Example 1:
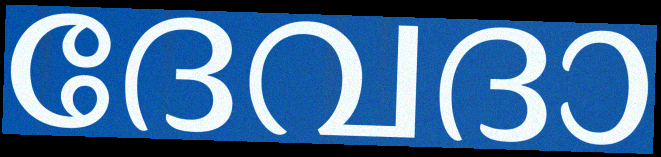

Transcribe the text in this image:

ദേവദാ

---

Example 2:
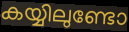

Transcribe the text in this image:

കയ്യിലുണ്ടോ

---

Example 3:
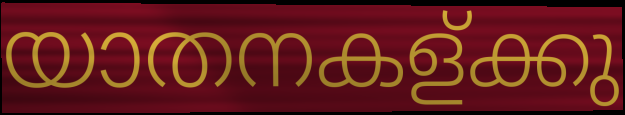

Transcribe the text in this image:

യാതനകള്ക്കു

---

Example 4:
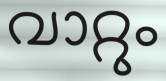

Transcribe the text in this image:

വാറ്റും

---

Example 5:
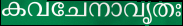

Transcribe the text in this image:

കവചേനാവൃതഃ